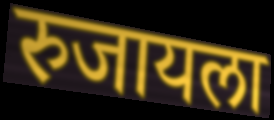
रुजायला